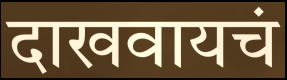
दाखवायचं